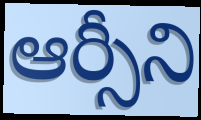
ఆర్సీని